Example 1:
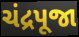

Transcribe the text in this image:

ચંદ્રપૂજા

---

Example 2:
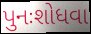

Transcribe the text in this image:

પુનઃશોધવા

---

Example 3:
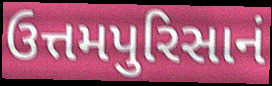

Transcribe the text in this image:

ઉત્તમપુરિસાનં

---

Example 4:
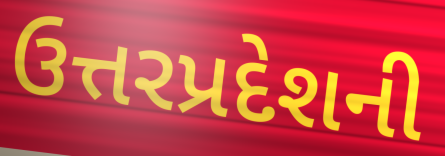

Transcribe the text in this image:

ઉત્તરપ્રદેશની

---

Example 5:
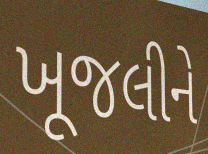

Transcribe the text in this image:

ખૂજલીને